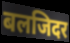
बलजिदर